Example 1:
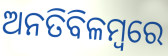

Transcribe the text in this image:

ଅନତିବିଳମ୍ବରେ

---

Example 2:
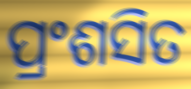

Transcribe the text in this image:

ପ୍ରଂଶସିତ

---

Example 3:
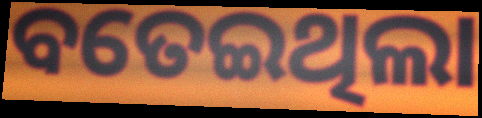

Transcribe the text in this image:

ବତେଇଥିଲା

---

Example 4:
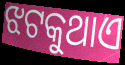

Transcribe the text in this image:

ଝଟକୁଥାଏ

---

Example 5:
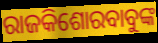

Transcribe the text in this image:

ରାଜକିଶୋରବାବୁଙ୍କ